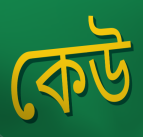
কেউ